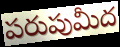
పరుపుమీద